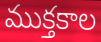
ముక్తకాల